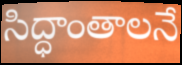
సిద్ధాంతాలనే